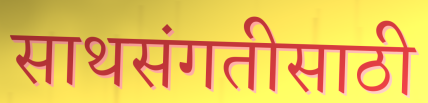
साथसंगतीसाठी